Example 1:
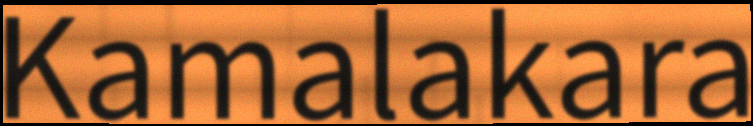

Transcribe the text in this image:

Kamalakara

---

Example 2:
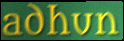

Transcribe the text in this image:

adhun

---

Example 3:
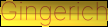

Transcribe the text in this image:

Gingerich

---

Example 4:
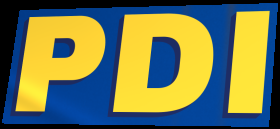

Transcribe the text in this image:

PDI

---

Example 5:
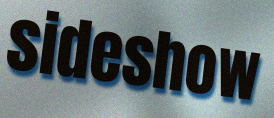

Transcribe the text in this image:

sideshow